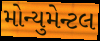
મોન્યુમેન્ટલ